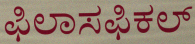
ಫಿಲಾಸಫಿಕಲ್